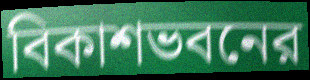
বিকাশভবনের